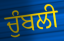
ਚੁੰਬਲੀ